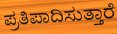
ಪ್ರತಿಪಾದಿಸುತ್ತಾರೆ